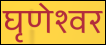
घृणेश्वर